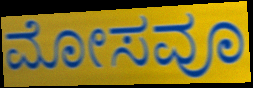
ಮೋಸವೂ